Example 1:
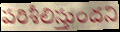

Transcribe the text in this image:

పరిశీలిస్తుందని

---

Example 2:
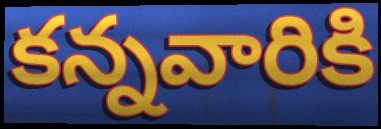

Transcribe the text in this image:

కన్నవారికి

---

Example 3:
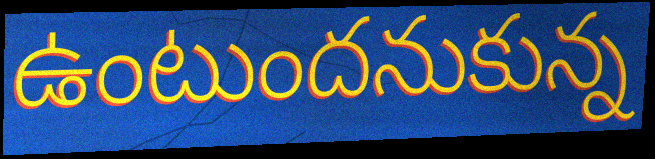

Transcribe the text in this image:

ఉంటుందనుకున్న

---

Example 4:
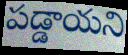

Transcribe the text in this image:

పడ్డాయని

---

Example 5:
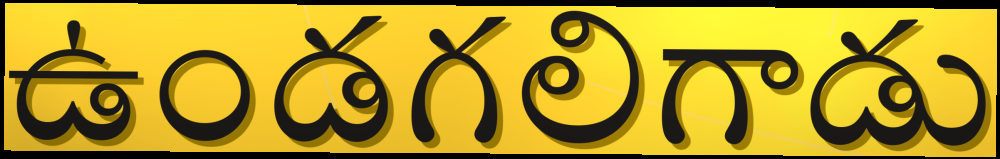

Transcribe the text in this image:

ఉండగలిగాడు